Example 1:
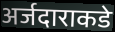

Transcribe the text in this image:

अर्जदाराकडे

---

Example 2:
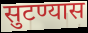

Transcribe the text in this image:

सुटण्यास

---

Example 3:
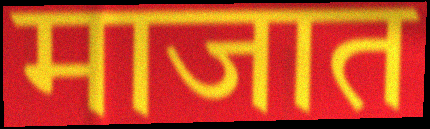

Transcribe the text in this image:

माजात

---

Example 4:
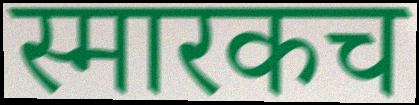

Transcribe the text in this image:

स्मारकच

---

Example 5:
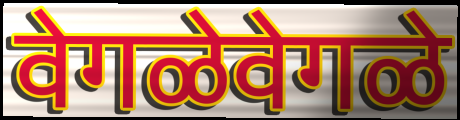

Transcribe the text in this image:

वेगळेवेगळे